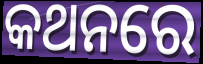
କଥନରେ